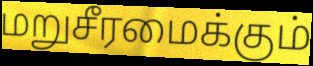
மறுசீரமைக்கும்